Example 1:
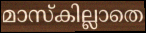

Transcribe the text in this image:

മാസ്കില്ലാതെ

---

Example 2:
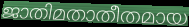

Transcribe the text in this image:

ജാതിമതാതീതമായ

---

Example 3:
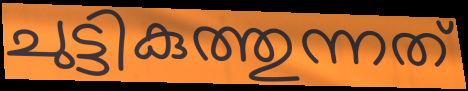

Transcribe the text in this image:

ചുട്ടികുത്തുന്നത്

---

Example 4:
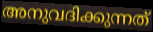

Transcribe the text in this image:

അനുവദിക്കുന്നത്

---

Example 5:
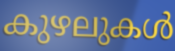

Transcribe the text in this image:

കുഴലുകൾ